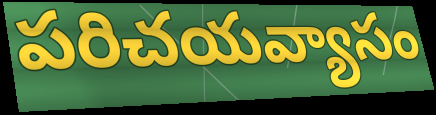
పరిచయవ్యాసం